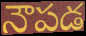
నౌపడ